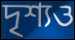
দৃশ্যও